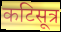
कटिसूत्र